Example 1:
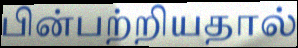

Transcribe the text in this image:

பின்பற்றியதால்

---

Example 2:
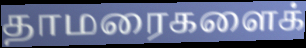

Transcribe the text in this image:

தாமரைகளைக்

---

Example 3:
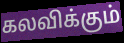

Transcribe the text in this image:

கலவிக்கும்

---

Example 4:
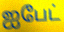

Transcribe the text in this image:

ஐபேட்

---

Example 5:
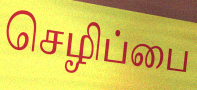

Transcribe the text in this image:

செழிப்பை